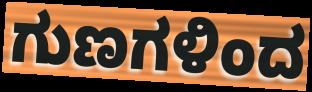
ಗುಣಗಳಿಂದ